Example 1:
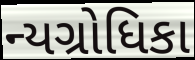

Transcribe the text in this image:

ન્યગ્રોધિકા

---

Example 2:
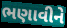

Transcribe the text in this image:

ભણાવીને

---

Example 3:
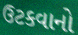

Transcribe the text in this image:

ઉટકવાનો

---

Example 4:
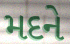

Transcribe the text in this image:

મદને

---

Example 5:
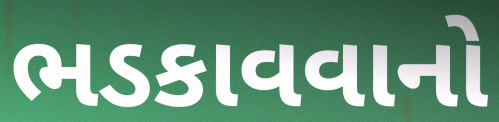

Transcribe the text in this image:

ભડકાવવાનો